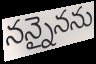
నన్నైనను